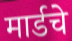
मार्डचे